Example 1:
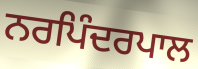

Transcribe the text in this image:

ਨਰਪਿੰਦਰਪਾਲ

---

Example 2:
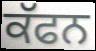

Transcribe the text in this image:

ਕੱਫਨ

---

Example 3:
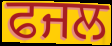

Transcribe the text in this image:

ਫਜਲ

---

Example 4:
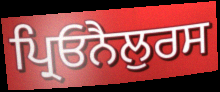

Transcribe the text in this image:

ਪ੍ਰਿਓਨੈਲੁਰਸ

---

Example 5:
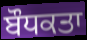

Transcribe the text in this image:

ਬੌਧਕਤਾ